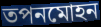
তপনমোহন